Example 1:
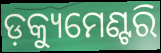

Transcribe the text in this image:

ଡ଼କ୍ୟୁମେଣ୍ଟରି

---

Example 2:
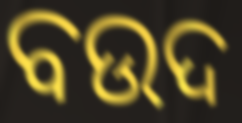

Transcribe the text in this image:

ବଉଦ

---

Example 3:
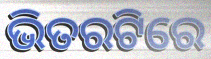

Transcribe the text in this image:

ଭିତରଟିରେ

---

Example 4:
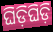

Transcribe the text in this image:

ଘିଡ଼ିଘିଡ଼ି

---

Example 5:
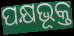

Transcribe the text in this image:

ପକ୍ଷଭୂକ୍ତ